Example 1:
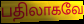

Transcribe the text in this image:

பதிலாகவே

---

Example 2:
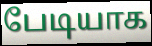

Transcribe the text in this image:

பேடியாக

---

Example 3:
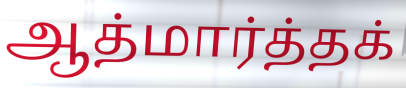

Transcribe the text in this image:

ஆத்மார்த்தக்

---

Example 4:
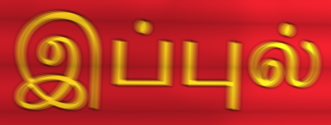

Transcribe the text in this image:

இப்புல்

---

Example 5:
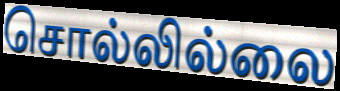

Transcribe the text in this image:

சொல்லில்லை